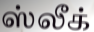
ஸ்லீக்